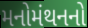
મનોમંથનનો